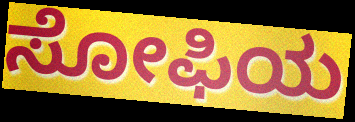
ಸೋಫಿಯ